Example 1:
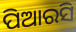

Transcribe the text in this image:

ପିଆରସି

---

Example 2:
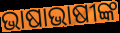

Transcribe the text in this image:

ଭାଷାଭାଷୀଙ୍କ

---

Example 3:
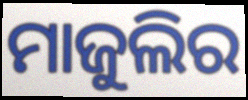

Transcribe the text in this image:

ମାଜୁଲିର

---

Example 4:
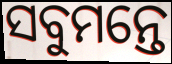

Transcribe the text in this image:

ସବୁମନ୍ତେ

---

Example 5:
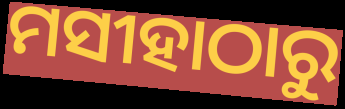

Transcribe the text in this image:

ମସୀହାଠାରୁ